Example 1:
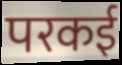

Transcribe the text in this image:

परकई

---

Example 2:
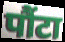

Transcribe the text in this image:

पौंटा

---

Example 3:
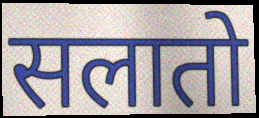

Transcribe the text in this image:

सलातो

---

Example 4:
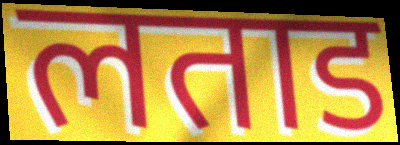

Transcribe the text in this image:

लताड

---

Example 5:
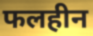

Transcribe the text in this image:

फलहीन